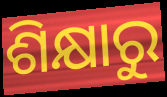
ଶିକ୍ଷାରୁ